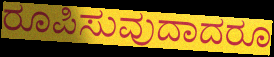
ರೂಪಿಸುವುದಾದರೂ